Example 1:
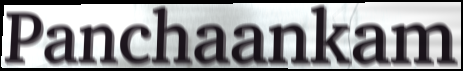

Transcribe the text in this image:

Panchaankam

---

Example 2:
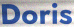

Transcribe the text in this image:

Doris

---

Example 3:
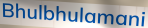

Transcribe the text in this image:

Bhulbhulamani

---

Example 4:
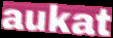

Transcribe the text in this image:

aukat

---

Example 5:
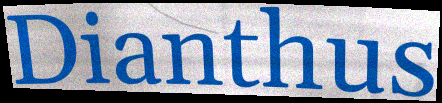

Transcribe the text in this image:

Dianthus